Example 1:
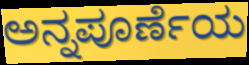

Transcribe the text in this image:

ಅನ್ನಪೂರ್ಣೆಯ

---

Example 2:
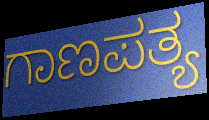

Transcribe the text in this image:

ಗಾಣಪತ್ಯ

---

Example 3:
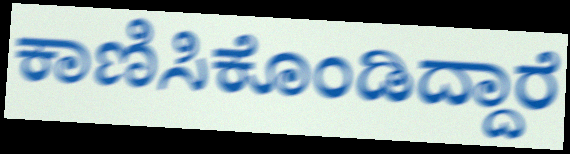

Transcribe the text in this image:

ಕಾಣಿಸಿಕೊಂಡಿದ್ದಾರೆ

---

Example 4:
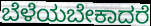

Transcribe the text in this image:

ಬೆಳೆಯಬೇಕಾದರೆ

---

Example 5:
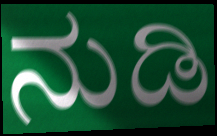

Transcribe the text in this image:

ನುಡಿ